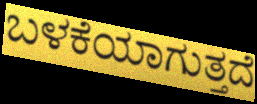
ಬಳಕೆಯಾಗುತ್ತದೆ